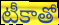
టీకాతో